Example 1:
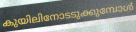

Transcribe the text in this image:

കുയിലിനോടടുക്കുമ്പോൾ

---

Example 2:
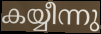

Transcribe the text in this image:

കയ്യീന്നു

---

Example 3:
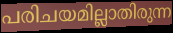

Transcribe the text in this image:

പരിചയമില്ലാതിരുന്ന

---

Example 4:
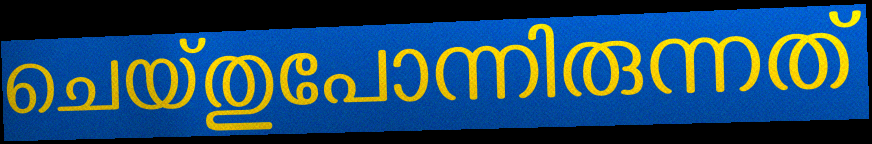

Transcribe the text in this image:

ചെയ്തുപോന്നിരുന്നത്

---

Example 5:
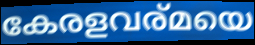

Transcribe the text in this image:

കേരളവര്മയെ